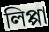
লিপ্পা